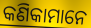
କଣିକାମାନେ